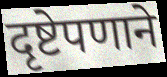
दृष्टेपणाने